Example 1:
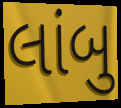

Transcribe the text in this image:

લાંબુ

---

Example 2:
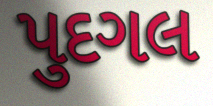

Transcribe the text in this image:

પુદગલ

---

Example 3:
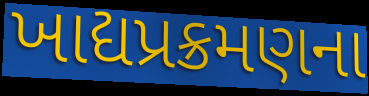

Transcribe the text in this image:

ખાદ્યપ્રક્રમણના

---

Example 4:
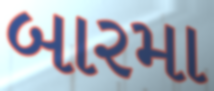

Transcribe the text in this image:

બારમા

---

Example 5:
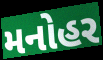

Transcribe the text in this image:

મનોહર